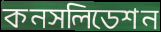
কনসলিডেশন